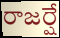
రాజర్షే